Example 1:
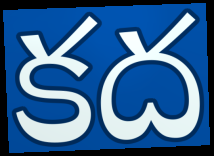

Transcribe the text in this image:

కద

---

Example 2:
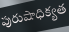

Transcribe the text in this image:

పురుషాధిక్యత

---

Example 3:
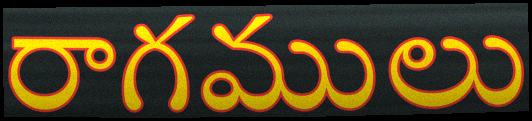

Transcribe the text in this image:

రాగములు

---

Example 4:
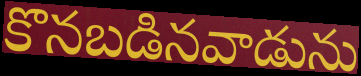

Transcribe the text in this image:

కొనబడినవాడును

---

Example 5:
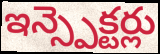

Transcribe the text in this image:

ఇన్స్పెక్టర్లు